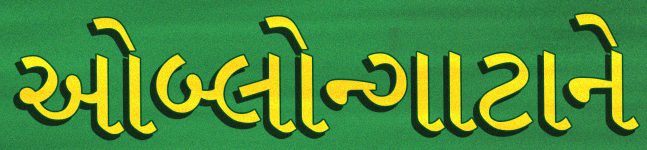
ઓબ્લોન્ગાટાને